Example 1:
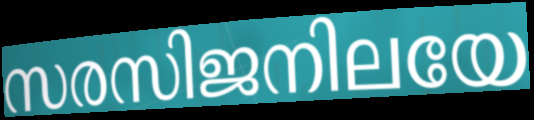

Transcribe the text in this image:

സരസിജനിലയേ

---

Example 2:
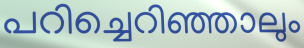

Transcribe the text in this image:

പറിച്ചെറിഞ്ഞാലും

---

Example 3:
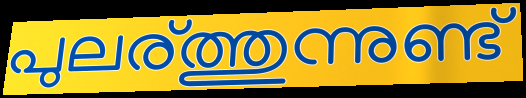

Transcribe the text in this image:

പുലര്ത്തുന്നുണ്ട്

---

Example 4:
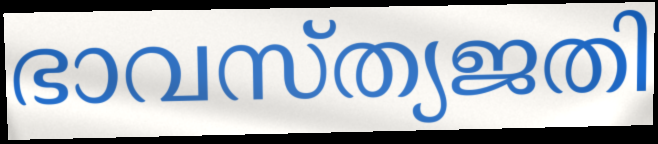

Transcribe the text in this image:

ഭാവസ്ത്യജതി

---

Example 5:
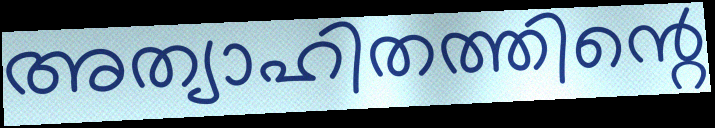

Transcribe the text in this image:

അത്യാഹിതത്തിന്റെ